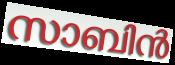
സാബിൻ